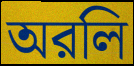
অরলি